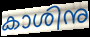
കാശിനു